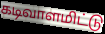
கடிவாளமிட்டு